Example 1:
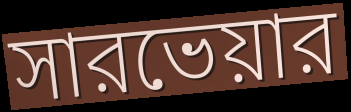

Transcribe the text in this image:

সারভেয়ার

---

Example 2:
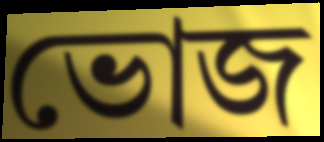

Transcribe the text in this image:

ভোজ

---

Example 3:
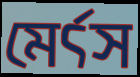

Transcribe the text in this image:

মের্ৎস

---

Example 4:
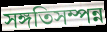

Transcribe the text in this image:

সঙ্গতিসম্পন্ন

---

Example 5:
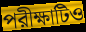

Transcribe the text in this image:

পরীক্ষাটিও